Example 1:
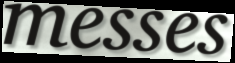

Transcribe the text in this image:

messes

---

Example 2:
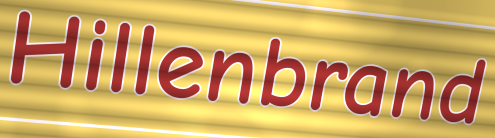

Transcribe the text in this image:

Hillenbrand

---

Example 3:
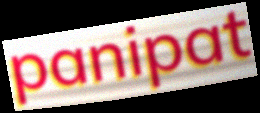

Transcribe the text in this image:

panipat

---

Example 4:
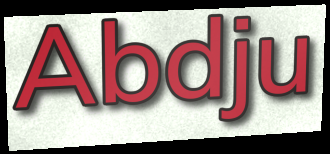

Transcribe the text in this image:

Abdju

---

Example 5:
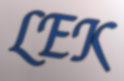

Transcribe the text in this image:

LEK